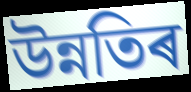
উন্নতিৰ